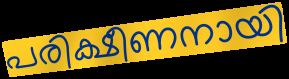
പരിക്ഷീണനായി